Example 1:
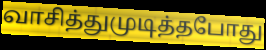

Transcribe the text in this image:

வாசித்துமுடித்தபோது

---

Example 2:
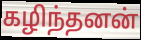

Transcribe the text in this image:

கழிந்தனன்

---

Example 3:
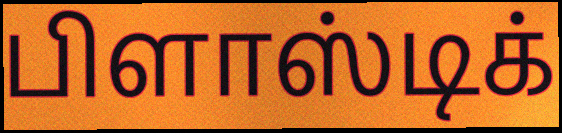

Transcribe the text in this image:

பிளாஸ்டிக்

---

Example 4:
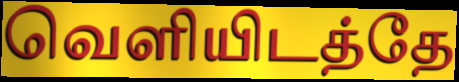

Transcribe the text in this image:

வெளியிடத்தே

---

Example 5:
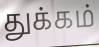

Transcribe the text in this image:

துக்கம்